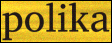
polika